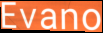
Evano